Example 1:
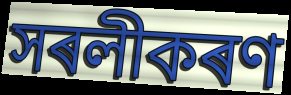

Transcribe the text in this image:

সৰলীকৰণ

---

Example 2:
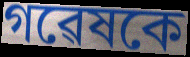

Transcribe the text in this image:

গৱেষকে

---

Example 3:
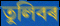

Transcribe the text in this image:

তুলিবৰ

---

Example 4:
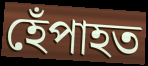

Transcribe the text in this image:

হেঁপাহত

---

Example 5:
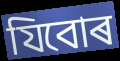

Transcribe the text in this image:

যিবোৰ